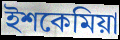
ইশকেমিয়া